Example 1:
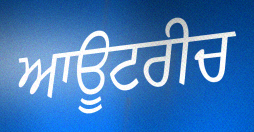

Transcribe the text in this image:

ਆਊਟਰੀਚ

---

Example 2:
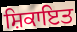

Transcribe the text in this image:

ਸ਼ਿਕਾਇਤ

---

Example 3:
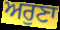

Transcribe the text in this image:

ਅਰੁਣਾ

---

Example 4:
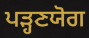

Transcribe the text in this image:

ਪੜ੍ਹਣਯੋਗ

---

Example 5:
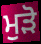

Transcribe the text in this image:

ਮੁਡ਼ੋ